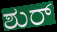
ಶುರ್